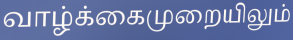
வாழ்க்கைமுறையிலும்